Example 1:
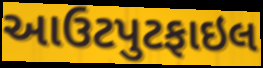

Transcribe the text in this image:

આઉટપુટફાઇલ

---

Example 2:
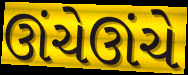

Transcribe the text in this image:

ઊંચેઊંચે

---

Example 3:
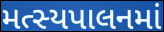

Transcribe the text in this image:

મત્સ્યપાલનમાં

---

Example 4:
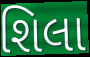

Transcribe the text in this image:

શિલા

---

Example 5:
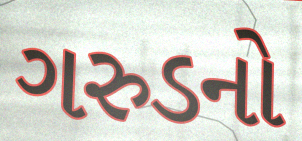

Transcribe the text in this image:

ગરુડનો